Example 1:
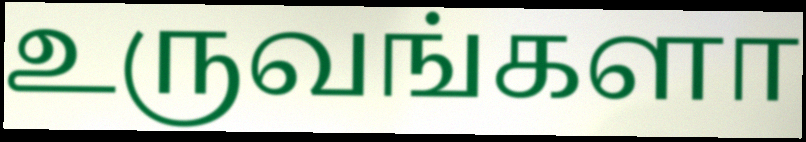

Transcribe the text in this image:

உருவங்களா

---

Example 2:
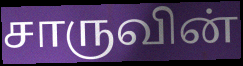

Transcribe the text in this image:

சாருவின்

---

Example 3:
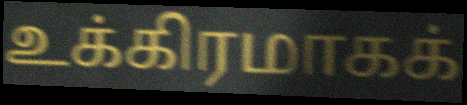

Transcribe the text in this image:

உக்கிரமாகக்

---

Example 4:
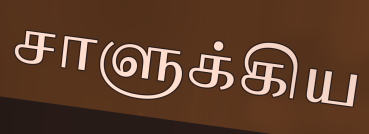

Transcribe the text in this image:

சாளுக்கிய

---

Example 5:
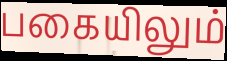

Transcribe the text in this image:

பகையிலும்